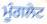
ਮੂੰਗਲੇਟ